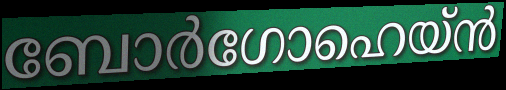
ബോർഗോഹെയ്ൻ